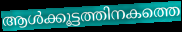
ആൾക്കൂട്ടത്തിനകത്തെ